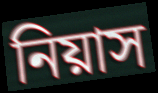
নিয়াস